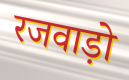
रजवाड़ो